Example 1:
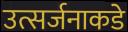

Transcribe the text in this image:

उत्सर्जनाकडे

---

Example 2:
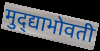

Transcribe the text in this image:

मुद्द्याभोवती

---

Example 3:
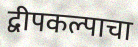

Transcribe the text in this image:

द्वीपकल्पाचा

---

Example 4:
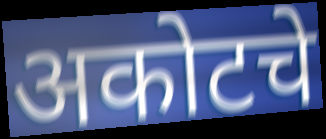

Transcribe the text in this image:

अकोटचे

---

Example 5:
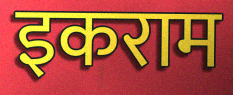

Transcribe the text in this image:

इकराम